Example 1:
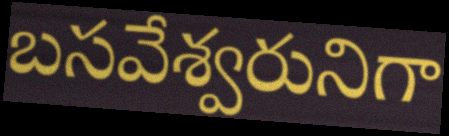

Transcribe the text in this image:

బసవేశ్వరునిగా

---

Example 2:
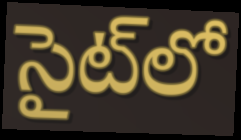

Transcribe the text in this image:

సైట్‌లో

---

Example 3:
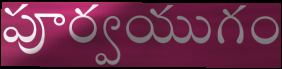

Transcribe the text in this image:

పూర్వయుగం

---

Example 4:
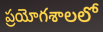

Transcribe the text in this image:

ప్రయోగశాలలో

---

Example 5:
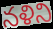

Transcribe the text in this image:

నళిని